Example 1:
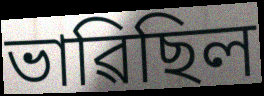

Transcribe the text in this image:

ভাৱিছিল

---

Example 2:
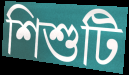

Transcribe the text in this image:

শিশুটি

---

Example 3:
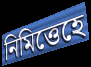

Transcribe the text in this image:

নিমিত্তেহে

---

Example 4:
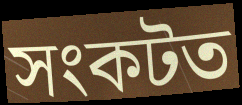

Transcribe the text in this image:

সংকটত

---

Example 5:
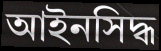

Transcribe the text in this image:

আইনসিদ্ধ